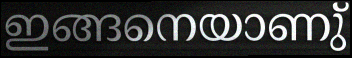
ഇങ്ങനെയാണു്